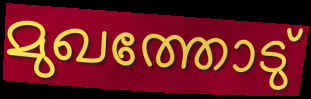
മുഖത്തോടു്